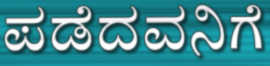
ಪಡೆದವನಿಗೆ